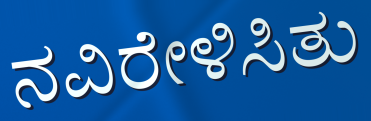
ನವಿರೇಳಿಸಿತು